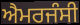
ਐਮਰਜੰਸੀ